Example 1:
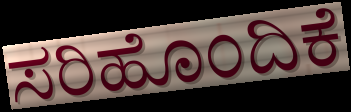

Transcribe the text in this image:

ಸರಿಹೊಂದಿಕೆ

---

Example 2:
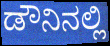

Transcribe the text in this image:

ಡೌನಿನಲ್ಲಿ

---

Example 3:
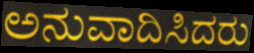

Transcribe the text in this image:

ಅನುವಾದಿಸಿದರು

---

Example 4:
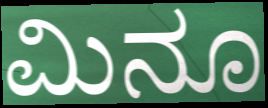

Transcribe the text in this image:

ಮಿನೂ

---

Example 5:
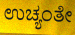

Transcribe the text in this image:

ಉಚ್ಯಂತೇ